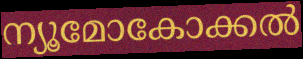
ന്യൂമോകോക്കൽ